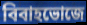
বিবাহভোজে